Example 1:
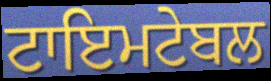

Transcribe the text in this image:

ਟਾਇਮਟੇਬਲ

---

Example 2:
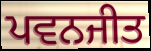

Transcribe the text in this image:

ਪਵਨਜੀਤ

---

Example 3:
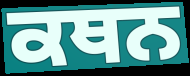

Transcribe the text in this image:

ਕਥਨ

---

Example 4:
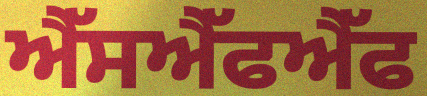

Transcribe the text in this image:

ਐੱਸਐੱਫਐੱਫ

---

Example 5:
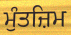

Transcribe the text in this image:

ਮੁੰਤਜ਼ਿਮ